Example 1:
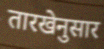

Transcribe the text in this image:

तारखेनुसार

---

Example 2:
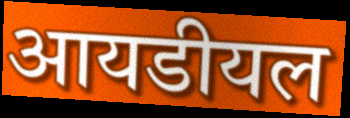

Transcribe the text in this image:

आयडीयल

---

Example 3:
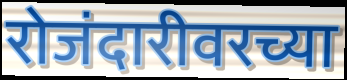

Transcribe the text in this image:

रोजंदारीवरच्या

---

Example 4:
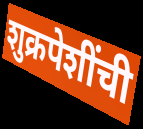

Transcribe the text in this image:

शुक्रपेशींची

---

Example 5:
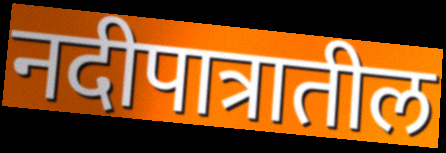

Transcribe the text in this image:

नदीपात्रातील